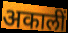
अकालीं